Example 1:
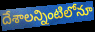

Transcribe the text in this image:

దేశాలన్నింటిలోనూ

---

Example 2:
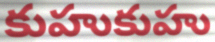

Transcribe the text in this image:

కుహుకుహు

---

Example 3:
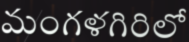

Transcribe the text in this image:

మంగళగిరిలో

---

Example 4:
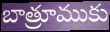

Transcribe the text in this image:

బాత్రూముకు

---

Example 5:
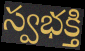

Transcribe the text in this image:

స్వభక్తి